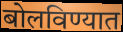
बोलविण्यात